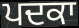
ਪਦਕਾ